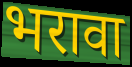
भरावा